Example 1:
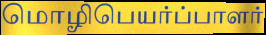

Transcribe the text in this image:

மொழிபெயர்ப்பாளர்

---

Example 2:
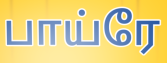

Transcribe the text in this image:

பாய்ரே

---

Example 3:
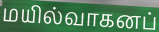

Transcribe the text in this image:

மயில்வாகனப்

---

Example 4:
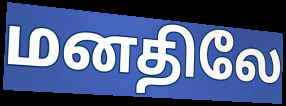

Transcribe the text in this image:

மனதிலே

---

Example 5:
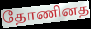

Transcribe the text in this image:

தோணினத